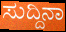
ಸುದ್ದಿನಾ